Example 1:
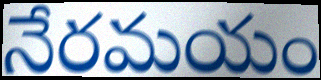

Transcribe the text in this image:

నేరమయం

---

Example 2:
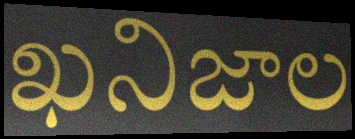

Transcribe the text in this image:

ఖనిజాల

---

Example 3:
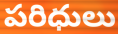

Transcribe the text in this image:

పరిధులు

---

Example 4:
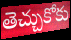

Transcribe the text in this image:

తెచ్చుకోకు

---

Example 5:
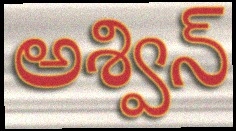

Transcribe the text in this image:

అశ్విన్